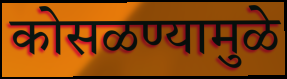
कोसळण्यामुळे